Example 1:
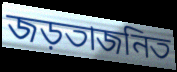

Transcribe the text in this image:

জড়তাজনিত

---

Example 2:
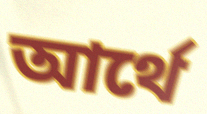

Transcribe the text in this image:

আর্থে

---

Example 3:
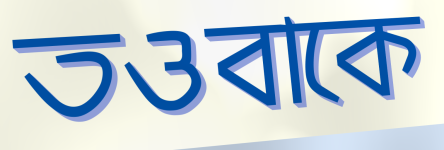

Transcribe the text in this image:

তওবাকে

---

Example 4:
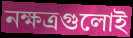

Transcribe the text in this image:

নক্ষত্রগুলোই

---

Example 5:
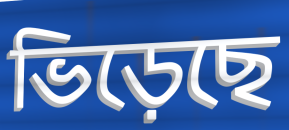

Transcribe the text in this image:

ভিড়েছে